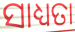
ସାଧ୍ୟତା